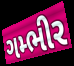
ગમ્ભીર